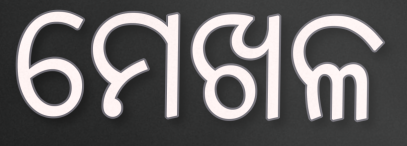
ମେଖଳ